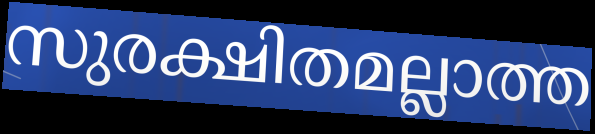
സുരക്ഷിതമല്ലാത്ത